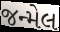
જન્મેલ